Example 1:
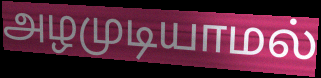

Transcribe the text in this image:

அழமுடியாமல்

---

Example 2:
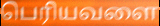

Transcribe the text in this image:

பெரியவளை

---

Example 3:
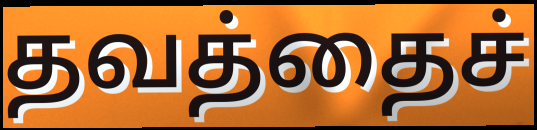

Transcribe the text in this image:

தவத்தைச்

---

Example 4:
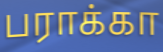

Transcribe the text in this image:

பராக்கா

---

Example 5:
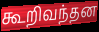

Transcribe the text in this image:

கூறிவந்தன